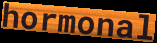
hormonal